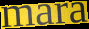
mara